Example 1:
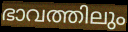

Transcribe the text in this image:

ഭാവത്തിലും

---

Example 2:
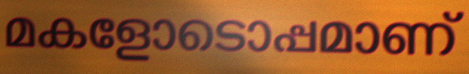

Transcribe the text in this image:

മകളോടൊപ്പമാണ്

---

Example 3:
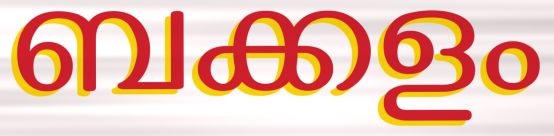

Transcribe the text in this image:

ബക്കളം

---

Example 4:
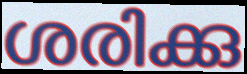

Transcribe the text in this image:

ശരിക്കു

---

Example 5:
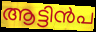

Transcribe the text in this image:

ആട്ടിൻപ